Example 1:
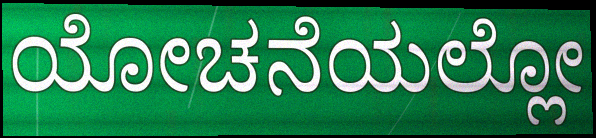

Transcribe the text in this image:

ಯೋಚನೆಯಲ್ಲೋ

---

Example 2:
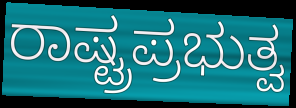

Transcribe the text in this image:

ರಾಷ್ಟ್ರಪ್ರಭುತ್ವ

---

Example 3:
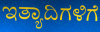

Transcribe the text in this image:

ಇತ್ಯಾದಿಗಳಿಗೆ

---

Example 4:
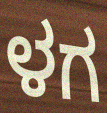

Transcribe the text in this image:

ಳಗ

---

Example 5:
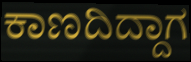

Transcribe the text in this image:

ಕಾಣದಿದ್ದಾಗ